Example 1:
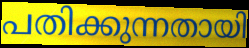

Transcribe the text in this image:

പതിക്കുന്നതായി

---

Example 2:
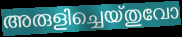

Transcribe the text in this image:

അരുളിച്ചെയ്തുവോ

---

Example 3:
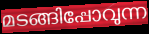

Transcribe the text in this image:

മടങ്ങിപ്പോവുന്ന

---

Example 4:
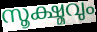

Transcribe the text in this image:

സൂക്ഷ്മവും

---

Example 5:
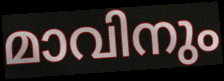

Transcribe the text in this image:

മാവിനും